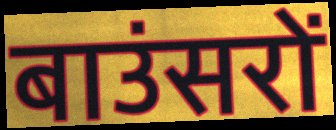
बाउंसरों